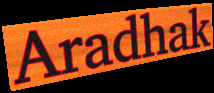
Aradhak